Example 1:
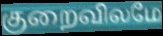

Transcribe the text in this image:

குறைவிலமே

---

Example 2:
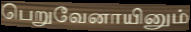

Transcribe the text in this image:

பெறுவேனாயினும்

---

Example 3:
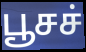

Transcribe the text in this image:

பூசச்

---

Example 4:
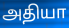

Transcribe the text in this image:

அதியா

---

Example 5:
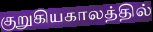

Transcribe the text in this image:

குறுகியகாலத்தில்